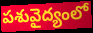
పశువైద్యంలో